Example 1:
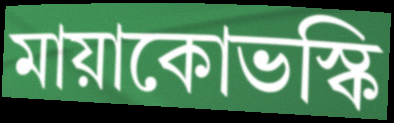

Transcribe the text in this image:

মায়াকোভস্কি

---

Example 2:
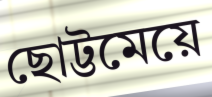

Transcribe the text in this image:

ছোট্টমেয়ে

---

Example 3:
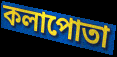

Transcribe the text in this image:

কলাপোতা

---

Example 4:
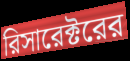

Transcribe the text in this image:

রিসারেক্টরের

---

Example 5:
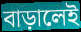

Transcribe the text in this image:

বাড়ালেই